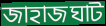
জাহাজঘাট